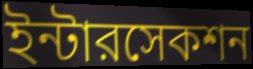
ইন্টারসেকশন